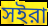
সইরা